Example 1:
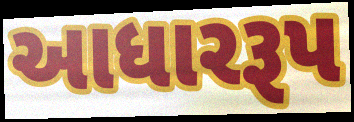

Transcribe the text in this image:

આધારરૂપ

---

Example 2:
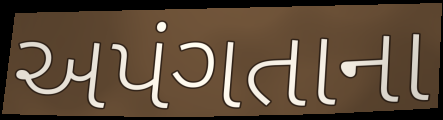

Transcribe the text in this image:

અપંગતાના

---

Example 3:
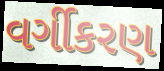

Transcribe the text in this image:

વર્ગીકરણ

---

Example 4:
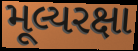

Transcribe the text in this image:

મૂલ્યરક્ષા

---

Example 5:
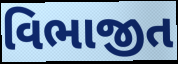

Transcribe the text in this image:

વિભાજીત